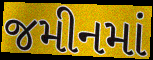
જમીનમાં